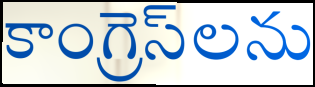
కాంగ్రెస్‌లను